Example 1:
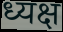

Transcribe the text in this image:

ध्यक्ष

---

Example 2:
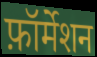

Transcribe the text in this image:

फ़ॉर्मेशन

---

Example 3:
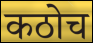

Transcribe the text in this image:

कठोच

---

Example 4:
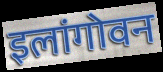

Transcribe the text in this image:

इलांगोवन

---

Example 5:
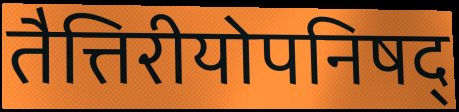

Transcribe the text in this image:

तैत्तिरीयोपनिषद्